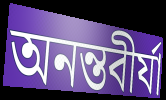
অনন্তবীর্যা